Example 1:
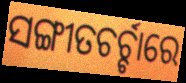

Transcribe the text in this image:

ସଙ୍ଗୀତଚର୍ଚ୍ଚାରେ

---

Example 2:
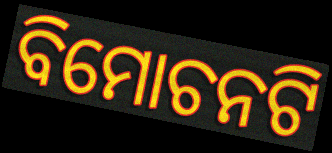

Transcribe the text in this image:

ବିମୋଚନଟି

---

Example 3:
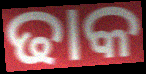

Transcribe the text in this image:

ଢାକ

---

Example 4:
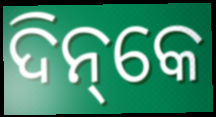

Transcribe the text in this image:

ଦିନ୍‌କେ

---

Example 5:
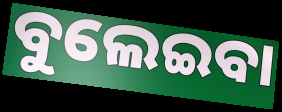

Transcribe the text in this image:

ବୁଲେଇବା